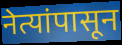
नेत्यांपासून